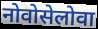
नोवोसेलोवा